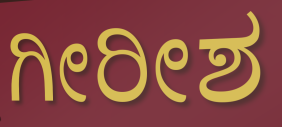
ಗೀರೀಶ